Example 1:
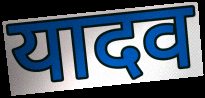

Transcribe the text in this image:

यादव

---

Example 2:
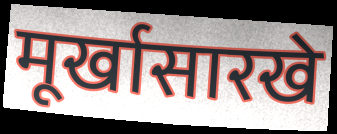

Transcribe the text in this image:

मूर्खासारखे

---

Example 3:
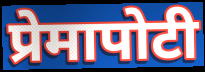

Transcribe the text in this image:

प्रेमापोटी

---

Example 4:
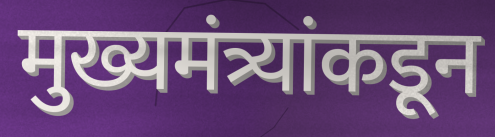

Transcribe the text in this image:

मुख्यमंत्र्यांकडून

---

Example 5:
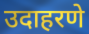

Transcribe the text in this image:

उदाहरणे